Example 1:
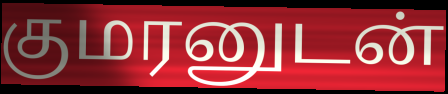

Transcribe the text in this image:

குமரனுடன்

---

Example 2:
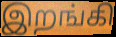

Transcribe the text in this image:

இறங்கி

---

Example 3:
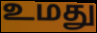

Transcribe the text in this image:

உமது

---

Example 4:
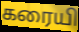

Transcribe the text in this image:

கரையி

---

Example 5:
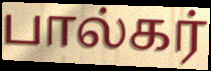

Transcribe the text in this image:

பால்கர்